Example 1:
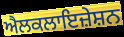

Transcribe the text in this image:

ਐਲਕਲਾਇਜ਼ੇਸ਼ਨ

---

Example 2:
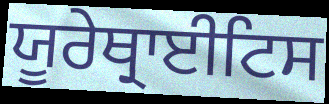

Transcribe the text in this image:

ਯੂਰੇਥ੍ਰਾਈਟਿਸ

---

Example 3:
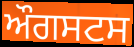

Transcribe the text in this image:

ਔਗਸਟਸ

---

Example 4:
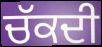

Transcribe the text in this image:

ਚੱਕਦੀ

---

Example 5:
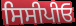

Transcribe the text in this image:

ਸਿਸੀਪੀਓ